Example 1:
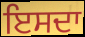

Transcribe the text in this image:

ਇਸਦਾ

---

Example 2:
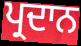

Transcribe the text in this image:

ਪ੍ਰਦਾਨ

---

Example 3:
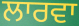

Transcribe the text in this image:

ਲਾਰਵਾ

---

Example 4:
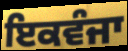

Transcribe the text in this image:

ਇਕਵੰਜਾ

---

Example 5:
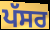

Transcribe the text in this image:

ਪੱਸਰ